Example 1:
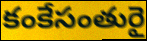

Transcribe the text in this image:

కంకేసంతురై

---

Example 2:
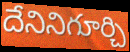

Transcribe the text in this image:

దేనినిగూర్చి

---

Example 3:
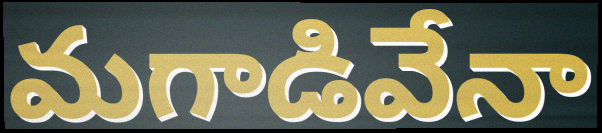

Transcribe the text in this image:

మగాడివేనా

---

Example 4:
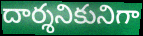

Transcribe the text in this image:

దార్శనికునిగా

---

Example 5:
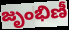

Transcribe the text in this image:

జృంభిణీ